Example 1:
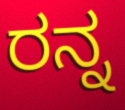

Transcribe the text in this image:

ರನ್ನ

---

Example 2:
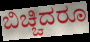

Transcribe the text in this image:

ಬಿಚ್ಚಿದರೂ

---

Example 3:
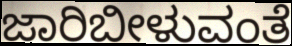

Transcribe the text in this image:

ಜಾರಿಬೀಳುವಂತೆ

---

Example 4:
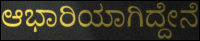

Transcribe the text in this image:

ಆಭಾರಿಯಾಗಿದ್ದೇನೆ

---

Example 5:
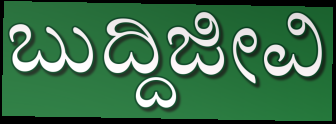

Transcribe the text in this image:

ಬುದ್ದಿಜೀವಿ